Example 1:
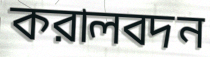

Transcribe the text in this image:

করালবদন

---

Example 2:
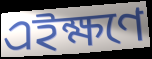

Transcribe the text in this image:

এইক্ষণে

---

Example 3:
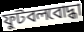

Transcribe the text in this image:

ফুটবলবোদ্ধা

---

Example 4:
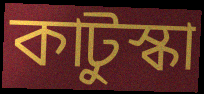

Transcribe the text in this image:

কাটুস্কা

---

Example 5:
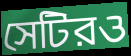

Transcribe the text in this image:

সেটিরও